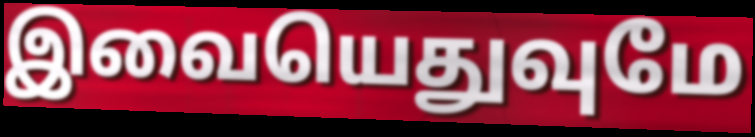
இவையெதுவுமே